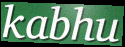
kabhu